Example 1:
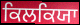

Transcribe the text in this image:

ਕਿਲਕਿਯਾ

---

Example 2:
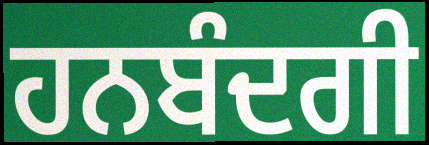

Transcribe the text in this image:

ਹਨਬੰਦਗੀ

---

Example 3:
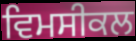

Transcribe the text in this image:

ਵਿਮਸੀਕਲ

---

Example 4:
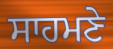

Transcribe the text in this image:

ਸਾਹਮਣੇ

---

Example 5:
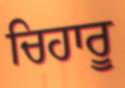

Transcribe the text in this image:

ਚਿਹਾਰੂ